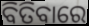
ବିତିବାରେ